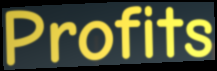
Profits